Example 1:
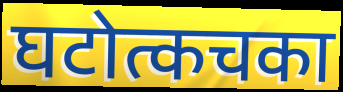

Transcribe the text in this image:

घटोत्कचका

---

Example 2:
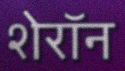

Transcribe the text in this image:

शेरॉन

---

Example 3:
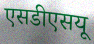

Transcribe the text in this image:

एसडीएसयू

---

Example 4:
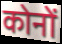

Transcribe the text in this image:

कोनों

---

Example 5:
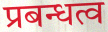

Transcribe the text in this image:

प्रबन्धत्व